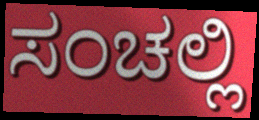
ಸಂಚಲ್ಲಿ